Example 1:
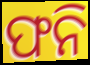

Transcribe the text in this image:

ଫନି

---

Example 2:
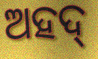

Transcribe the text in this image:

ଅହଦ୍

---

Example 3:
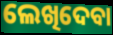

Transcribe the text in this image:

ଲେଖିଦେବା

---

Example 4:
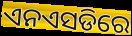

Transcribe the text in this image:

ଏନଏସଡିରେ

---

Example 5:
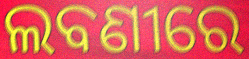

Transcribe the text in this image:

ଲବଣୀରେ